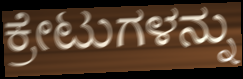
ಕ್ರೇಟುಗಳನ್ನು